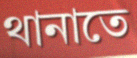
থানাতে